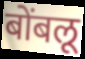
बोंबलू